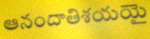
ఆనందాతిశయయై